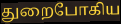
துறைபோகிய